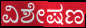
ವಿಶೇಷಣ